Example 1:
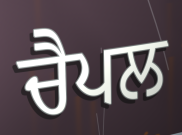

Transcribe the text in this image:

ਚੈਪਲ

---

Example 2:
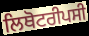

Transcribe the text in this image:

ਲਿਥੋਟਰੀਪਸੀ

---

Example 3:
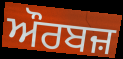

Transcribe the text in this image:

ਔਰਬਜ਼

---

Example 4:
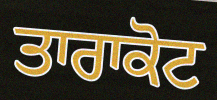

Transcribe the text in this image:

ਤਾਰਾਕੋਟ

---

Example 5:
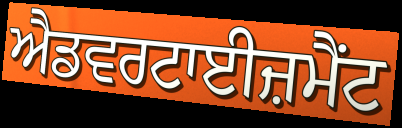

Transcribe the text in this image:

ਐਡਵਰਟਾਈਜ਼ਮੈਂਟ